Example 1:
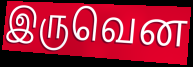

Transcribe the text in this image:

இருவென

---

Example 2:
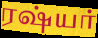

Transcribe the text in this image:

ரஷ்யர்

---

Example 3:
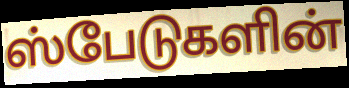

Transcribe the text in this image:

ஸ்பேடுகளின்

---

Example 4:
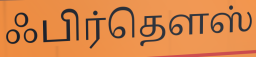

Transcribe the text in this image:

ஃபிர்தௌஸ்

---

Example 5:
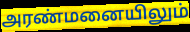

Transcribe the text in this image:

அரண்மனையிலும்